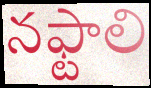
నఫ్టాలి